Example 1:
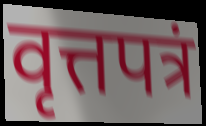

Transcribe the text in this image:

वृत्तपत्रं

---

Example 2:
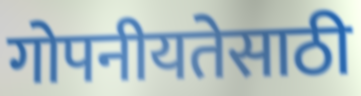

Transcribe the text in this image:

गोपनीयतेसाठी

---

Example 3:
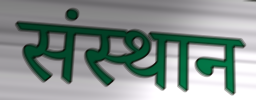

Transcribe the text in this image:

संस्थान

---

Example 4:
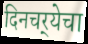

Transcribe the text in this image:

दिनचर्येचा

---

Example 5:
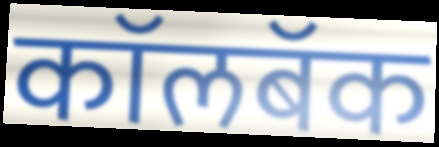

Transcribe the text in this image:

कॉलबॅक